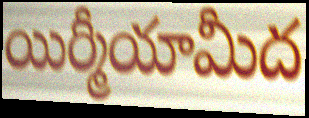
యిర్మీయామీద